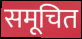
समूचित